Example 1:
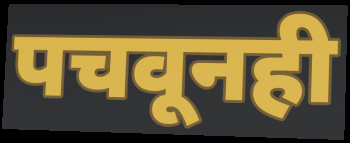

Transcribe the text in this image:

पचवूनही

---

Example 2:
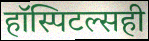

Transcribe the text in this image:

हॉस्पिटल्सही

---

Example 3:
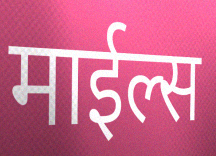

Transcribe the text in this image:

माईल्स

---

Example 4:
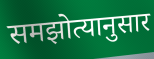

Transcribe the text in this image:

समझोत्यानुसार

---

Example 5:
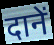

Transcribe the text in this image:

दानें